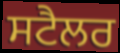
ਸਟੈਲਰ